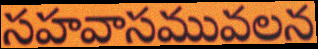
సహవాసమువలన